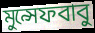
মুন্সেফবাবু